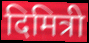
दिमित्री